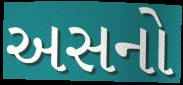
અસનો